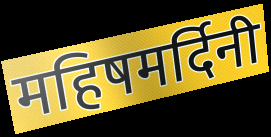
महिषमर्दिनी